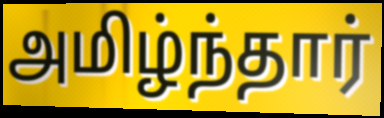
அமிழ்ந்தார்